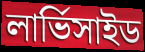
লার্ভিসাইড